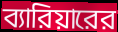
ব্যারিয়ারের